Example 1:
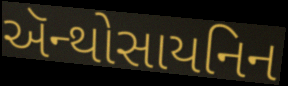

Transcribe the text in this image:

ઍન્થોસાયનિન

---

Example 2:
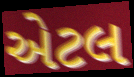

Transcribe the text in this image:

એટલ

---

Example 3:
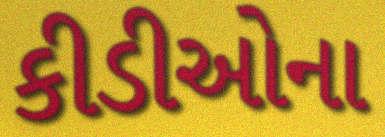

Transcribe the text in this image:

કીડીઓના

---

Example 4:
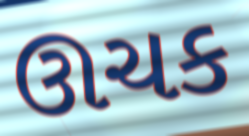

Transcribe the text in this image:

ઊચક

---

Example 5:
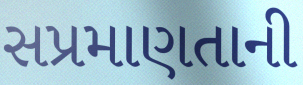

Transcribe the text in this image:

સપ્રમાણતાની